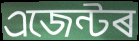
এজেন্টৰ